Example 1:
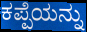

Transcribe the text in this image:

ಕಪ್ಪೆಯನ್ನು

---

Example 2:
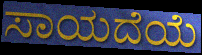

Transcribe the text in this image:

ಸಾಯದೆಯೆ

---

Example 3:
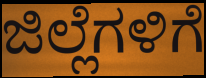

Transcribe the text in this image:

ಜಿಲ್ಲೆಗಳಿಗೆ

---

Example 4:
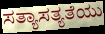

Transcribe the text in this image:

ಸತ್ಯಾಸತ್ಯತೆಯು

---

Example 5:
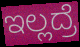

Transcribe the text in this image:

ಇಲ್ಲದ್ರೆ